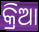
କ୍ରିଆ